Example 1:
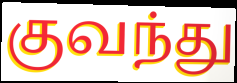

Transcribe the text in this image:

குவந்து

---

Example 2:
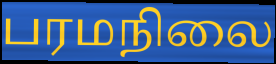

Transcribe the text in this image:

பரமநிலை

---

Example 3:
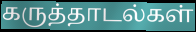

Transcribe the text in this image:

கருத்தாடல்கள்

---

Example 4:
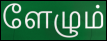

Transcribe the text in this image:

ளேழும்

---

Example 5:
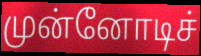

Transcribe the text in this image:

முன்னோடிச்